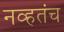
नव्हतंच